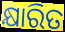
କ୍ଷାରିତ